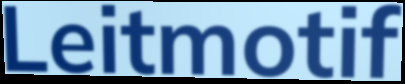
Leitmotif